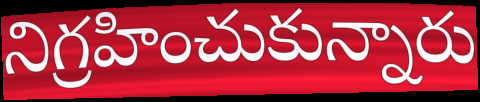
నిగ్రహించుకున్నారు